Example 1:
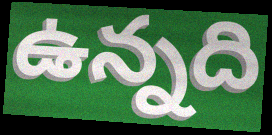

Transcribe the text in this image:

ఉన్నది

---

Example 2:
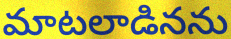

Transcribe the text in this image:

మాటలాడినను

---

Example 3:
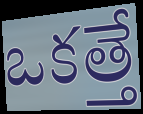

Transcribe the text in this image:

ఒకత్తే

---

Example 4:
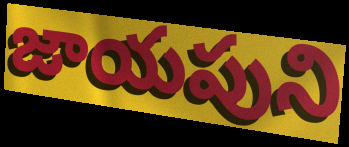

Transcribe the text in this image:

జాయపుని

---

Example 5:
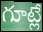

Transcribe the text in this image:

గూట్లే